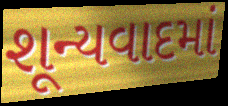
શૂન્યવાદમાં